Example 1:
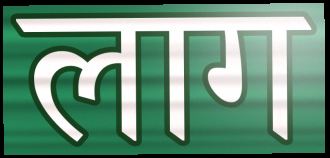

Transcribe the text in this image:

लाग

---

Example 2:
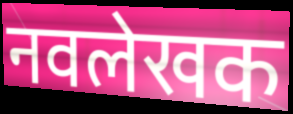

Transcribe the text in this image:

नवलेखक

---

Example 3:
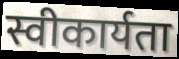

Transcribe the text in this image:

स्वीकार्यता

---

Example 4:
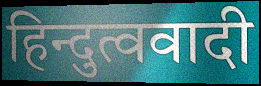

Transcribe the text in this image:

हिन्दुत्ववादी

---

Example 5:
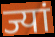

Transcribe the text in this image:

ज्यां